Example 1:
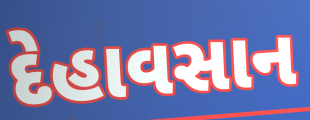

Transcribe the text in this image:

દેહાવસાન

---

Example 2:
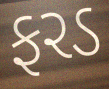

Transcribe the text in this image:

ફરડ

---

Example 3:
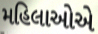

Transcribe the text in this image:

મહિલાઓએ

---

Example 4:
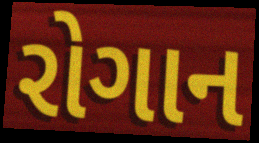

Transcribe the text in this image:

રોગાન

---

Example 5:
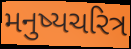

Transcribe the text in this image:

મનુષ્યચરિત્ર